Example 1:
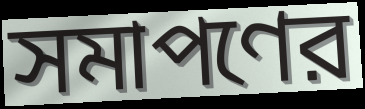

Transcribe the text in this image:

সমাপণের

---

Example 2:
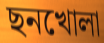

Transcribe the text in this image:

ছনখোলা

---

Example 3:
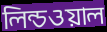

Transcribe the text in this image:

লিন্ডওয়াল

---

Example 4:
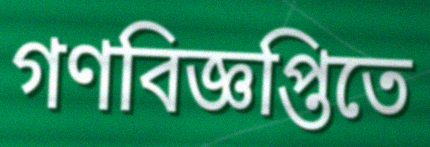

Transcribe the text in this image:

গণবিজ্ঞপ্তিতে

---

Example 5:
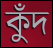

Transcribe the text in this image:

কুঁদ